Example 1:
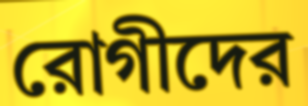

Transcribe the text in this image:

রোগীদের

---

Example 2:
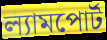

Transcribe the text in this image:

ল্যামপোর্ট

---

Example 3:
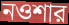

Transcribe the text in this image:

নওশার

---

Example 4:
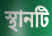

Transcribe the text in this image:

স্থানটি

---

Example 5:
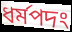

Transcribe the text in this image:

ধর্মপদং